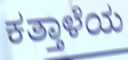
ಕತ್ತಾಳೆಯ